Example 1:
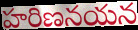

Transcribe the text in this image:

హరిణనయన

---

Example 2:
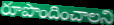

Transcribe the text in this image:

రూపొందించాలని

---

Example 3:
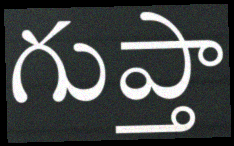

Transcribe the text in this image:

గుప్తా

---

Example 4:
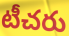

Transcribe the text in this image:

టీచరు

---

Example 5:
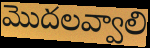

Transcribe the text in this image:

మొదలవ్వాలి